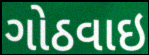
ગોઠવાઇ